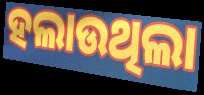
ହଲାଉଥିଲା